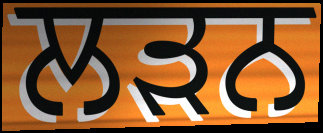
ਲੜਨ